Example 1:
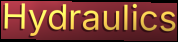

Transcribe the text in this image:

Hydraulics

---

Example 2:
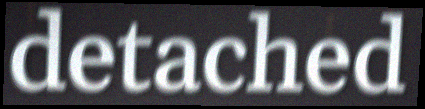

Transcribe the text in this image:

detached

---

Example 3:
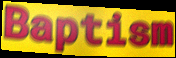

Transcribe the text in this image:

Baptism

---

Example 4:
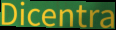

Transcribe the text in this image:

Dicentra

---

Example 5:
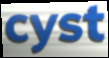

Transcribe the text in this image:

cyst